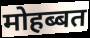
मोहब्बत